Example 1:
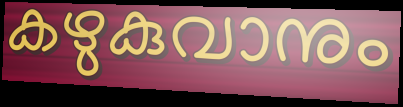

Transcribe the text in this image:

കഴുകുവാനും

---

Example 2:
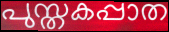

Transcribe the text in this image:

പുസ്തകപ്പാത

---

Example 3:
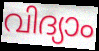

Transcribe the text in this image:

വിദ്യാം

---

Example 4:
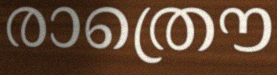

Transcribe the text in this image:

രാത്രൌ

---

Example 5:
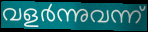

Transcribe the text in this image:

വളർന്നുവന്ന്